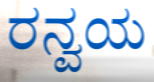
ರನ್ವಯ